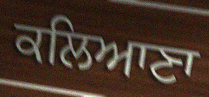
ਕਲਿਆਣਾ